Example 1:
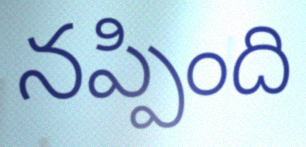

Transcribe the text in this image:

నప్పింది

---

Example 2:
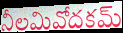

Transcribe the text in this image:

నీలమివోదకమ్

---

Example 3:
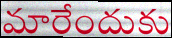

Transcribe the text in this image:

మారేందుకు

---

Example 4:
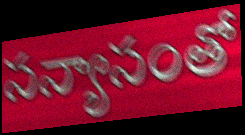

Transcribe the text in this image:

సన్యాసంతో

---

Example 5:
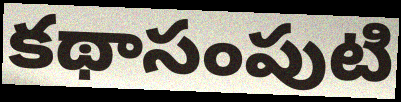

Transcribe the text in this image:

కథాసంపుటి